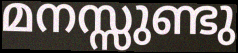
മനസ്സുണ്ടു